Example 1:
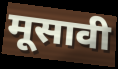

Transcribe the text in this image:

मूसावी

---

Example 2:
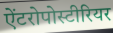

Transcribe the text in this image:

ऐंटरोपोस्टीरियर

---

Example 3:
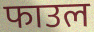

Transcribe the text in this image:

फाउल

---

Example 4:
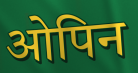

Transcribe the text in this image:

ओपिन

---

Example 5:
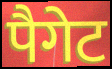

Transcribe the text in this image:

पैगेट